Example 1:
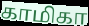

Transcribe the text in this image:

காமிகா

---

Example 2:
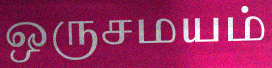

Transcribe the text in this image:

ஒருசமயம்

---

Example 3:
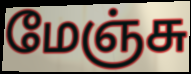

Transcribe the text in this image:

மேஞ்சு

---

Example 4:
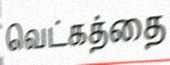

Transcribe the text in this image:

வெட்கத்தை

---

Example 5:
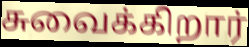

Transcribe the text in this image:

சுவைக்கிறார்